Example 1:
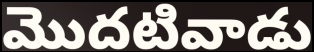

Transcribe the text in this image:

మొదటివాడు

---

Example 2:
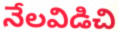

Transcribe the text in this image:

నేలవిడిచి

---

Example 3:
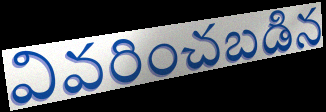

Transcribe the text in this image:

వివరించబడిన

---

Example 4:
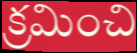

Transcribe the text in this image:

క్రమించి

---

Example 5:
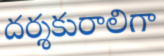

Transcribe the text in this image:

దర్శకురాలిగా